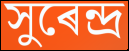
সুৰেন্দ্ৰ